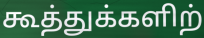
கூத்துக்களிற்